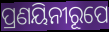
ପ୍ରଣୟିନୀରୂପେ